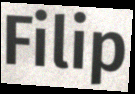
Filip